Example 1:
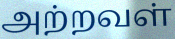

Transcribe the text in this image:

அற்றவள்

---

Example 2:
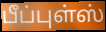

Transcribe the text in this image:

பீப்புள்ஸ்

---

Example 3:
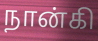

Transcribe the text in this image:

நான்கி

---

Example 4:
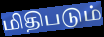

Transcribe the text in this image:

மிதிபடும்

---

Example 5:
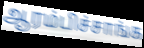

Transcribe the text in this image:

ஆரம்பிச்சாங்க